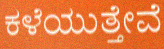
ಕಳೆಯುತ್ತೇವೆ